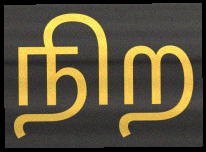
நிற